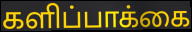
களிப்பாக்கை